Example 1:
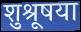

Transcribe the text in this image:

शुश्रूषया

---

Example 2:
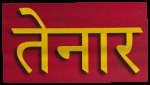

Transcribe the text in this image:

तेनार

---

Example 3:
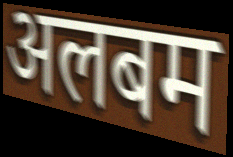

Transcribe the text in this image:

अलबम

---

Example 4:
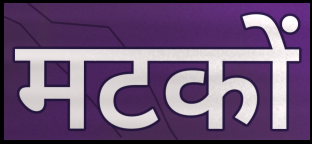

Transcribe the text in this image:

मटकों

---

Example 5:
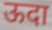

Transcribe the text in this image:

ऊदा